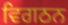
ਵਿਗਠਨ